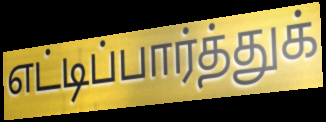
எட்டிப்பார்த்துக்